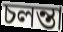
চলন্তা